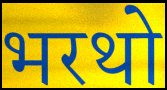
भरथो